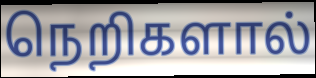
நெறிகளால்